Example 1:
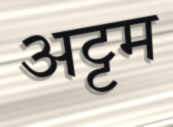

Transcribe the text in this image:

अट्टम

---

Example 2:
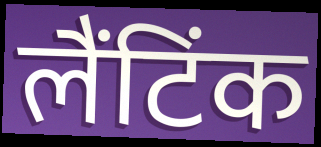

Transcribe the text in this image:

लैंटिंक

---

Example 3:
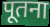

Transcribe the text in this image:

पूतना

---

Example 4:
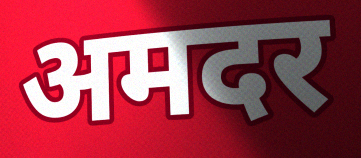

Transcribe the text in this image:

अमदर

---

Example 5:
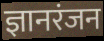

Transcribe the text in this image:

ज्ञानरंजन